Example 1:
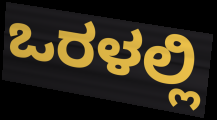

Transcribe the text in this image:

ಒರಳಲ್ಲಿ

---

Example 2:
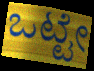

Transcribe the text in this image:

ಒಟ್ಟೇ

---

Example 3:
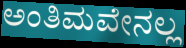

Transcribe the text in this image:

ಅಂತಿಮವೇನಲ್ಲ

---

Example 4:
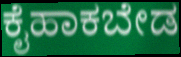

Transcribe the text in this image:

ಕೈಹಾಕಬೇಡ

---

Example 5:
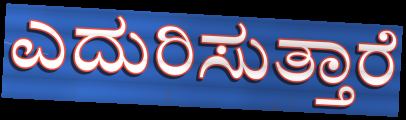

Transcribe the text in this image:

ಎದುರಿಸುತ್ತಾರೆ